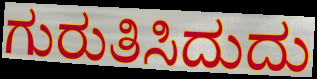
ಗುರುತಿಸಿದುದು